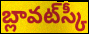
బ్లావట్‌స్కీ